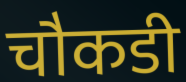
चौकडी